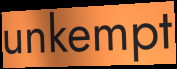
unkempt